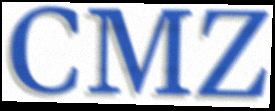
CMZ